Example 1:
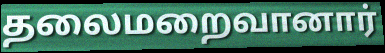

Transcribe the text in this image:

தலைமறைவானார்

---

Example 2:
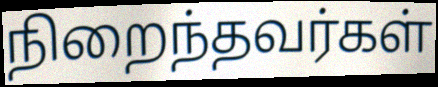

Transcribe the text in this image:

நிறைந்தவர்கள்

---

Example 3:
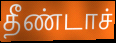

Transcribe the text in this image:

தீண்டாச்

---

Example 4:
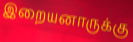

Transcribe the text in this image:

இறையனாருக்கு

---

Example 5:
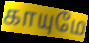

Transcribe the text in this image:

காயுமே